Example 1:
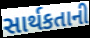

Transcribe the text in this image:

સાર્થકતાની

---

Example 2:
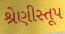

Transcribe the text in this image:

શ્રેણીસ્તૂપ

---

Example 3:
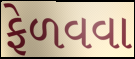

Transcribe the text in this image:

ફેળવવા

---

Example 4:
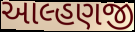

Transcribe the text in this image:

આલ્હણજી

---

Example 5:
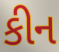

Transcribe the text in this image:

કીન